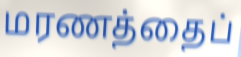
மரணத்தைப்